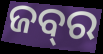
ଜବ୍‍ର